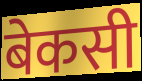
बेकसी